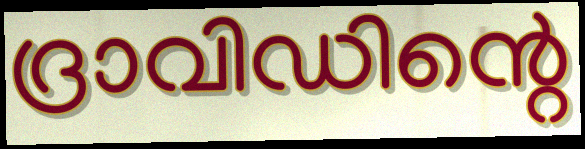
ദ്രാവിഡിന്റെ